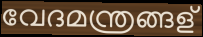
വേദമന്ത്രങ്ങള്